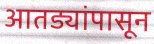
आतड्यांपासून